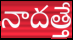
నాదత్తే